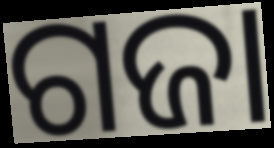
ଗଜା